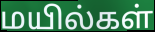
மயில்கள்